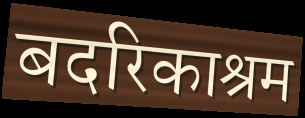
बदरिकाश्रम